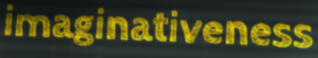
imaginativeness